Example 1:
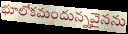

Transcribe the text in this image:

భూలోకమందున్నవైనను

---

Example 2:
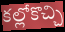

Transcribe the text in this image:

కల్లోకొచ్చి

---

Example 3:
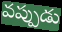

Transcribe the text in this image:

వప్పుడు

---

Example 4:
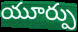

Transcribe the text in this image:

యూర్పు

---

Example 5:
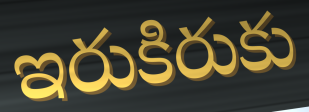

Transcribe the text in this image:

ఇరుకిరుకు